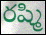
రష్మి